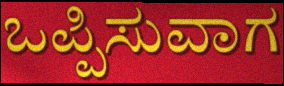
ಒಪ್ಪಿಸುವಾಗ